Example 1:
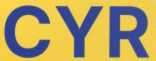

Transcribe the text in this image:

CYR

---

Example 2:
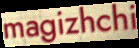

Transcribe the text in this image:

magizhchi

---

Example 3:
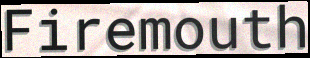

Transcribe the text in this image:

Firemouth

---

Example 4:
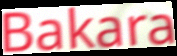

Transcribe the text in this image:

Bakara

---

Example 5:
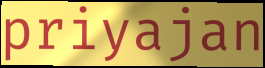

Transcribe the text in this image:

priyajan